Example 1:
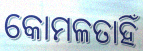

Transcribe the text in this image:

କୋମଳତାହିଁ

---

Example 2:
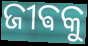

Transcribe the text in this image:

ଜୀଵକୁ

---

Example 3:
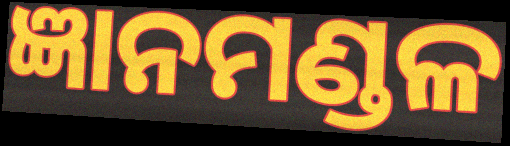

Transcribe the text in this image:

ଜ୍ଞାନମଣ୍ଡଳ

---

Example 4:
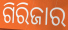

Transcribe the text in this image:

ଗିରିଜାର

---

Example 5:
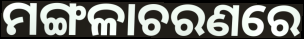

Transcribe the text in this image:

ମଙ୍ଗଳାଚରଣରେ